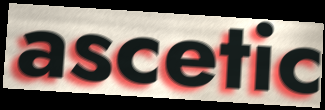
ascetic